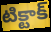
టిక్టాక్